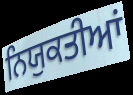
ਨਿਯੁਕਤੀਆਂ